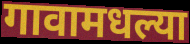
गावामधल्या